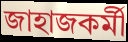
জাহাজকর্মী